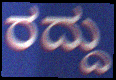
ರದ್ದು